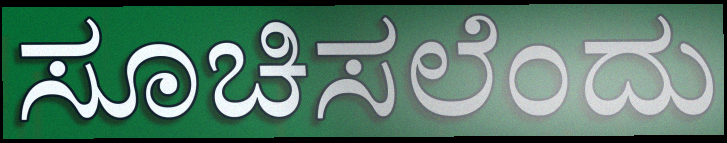
ಸೂಚಿಸಲೆಂದು